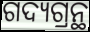
ଗଦ୍ୟଗ୍ରନ୍ଥ